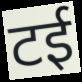
टई